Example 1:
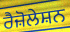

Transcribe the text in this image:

ਰੈਜ਼ੋਲੇਸ਼ਨ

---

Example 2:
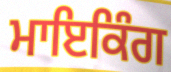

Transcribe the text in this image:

ਮਾਇਕਿੰਗ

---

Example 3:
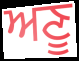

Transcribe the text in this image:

ਅਣੂ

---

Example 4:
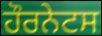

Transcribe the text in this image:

ਹੌਰਨੇਟਸ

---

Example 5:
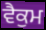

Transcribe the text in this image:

ਵੈਕੁਮ